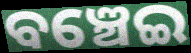
ବଞ୍ଚେଇ